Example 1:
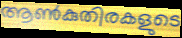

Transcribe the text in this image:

ആൺകുതിരകളുടെ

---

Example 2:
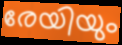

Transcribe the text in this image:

രേയിയും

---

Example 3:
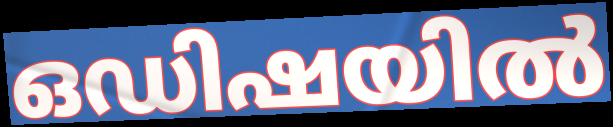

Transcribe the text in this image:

ഒഡിഷയിൽ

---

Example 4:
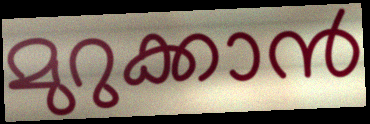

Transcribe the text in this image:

മുറുക്കാൻ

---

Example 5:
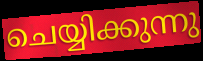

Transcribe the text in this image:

ചെയ്യിക്കുന്നു